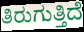
ತಿರುಗುತ್ತಿದೆ